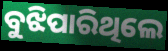
ବୁଝିପାରିଥିଲେ